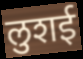
लुशई